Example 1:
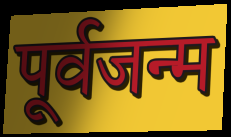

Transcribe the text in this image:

पूर्वजन्म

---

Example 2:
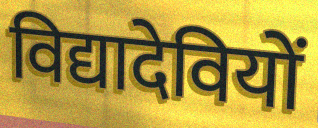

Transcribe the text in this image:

विद्यादेवियों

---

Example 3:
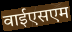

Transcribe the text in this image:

वाईएसएम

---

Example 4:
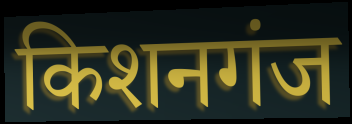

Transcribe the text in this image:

किशनगंज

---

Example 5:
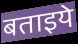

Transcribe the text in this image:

बताइये